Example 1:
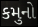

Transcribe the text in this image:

કમુનો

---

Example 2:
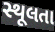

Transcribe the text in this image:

સ્થૂલતા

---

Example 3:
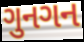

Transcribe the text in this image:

ગુનગન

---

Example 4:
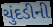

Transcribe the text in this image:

ચુંદડીની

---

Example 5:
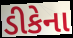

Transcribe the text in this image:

ડીકેના